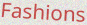
Fashions